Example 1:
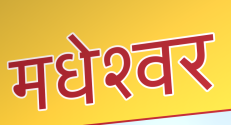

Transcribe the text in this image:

मधेश्वर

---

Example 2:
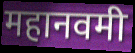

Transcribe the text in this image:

महानवमी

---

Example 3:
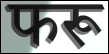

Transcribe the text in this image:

फरू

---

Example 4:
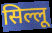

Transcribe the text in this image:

सिल्लू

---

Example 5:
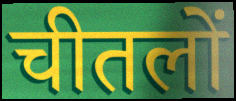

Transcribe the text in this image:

चीतलों